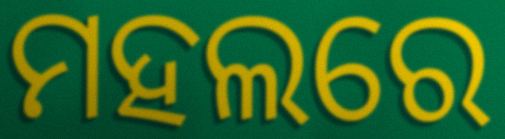
ମହଲରେ